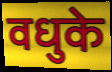
वधुके